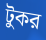
টুকর